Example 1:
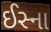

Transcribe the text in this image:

ઈસ્ના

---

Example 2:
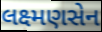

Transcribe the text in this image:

લક્ષ્મણસેન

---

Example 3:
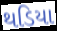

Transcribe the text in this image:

થડિયા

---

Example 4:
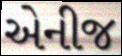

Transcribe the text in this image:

એનીજ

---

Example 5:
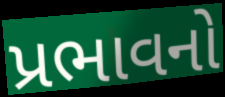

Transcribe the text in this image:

પ્રભાવનો